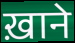
ख़ाने